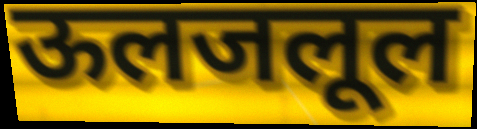
ऊलजलूल